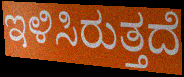
ಇಳಿಸಿರುತ್ತದೆ